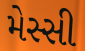
મેસ્સી